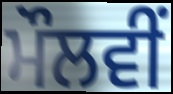
ਮੌਲਵੀਂ